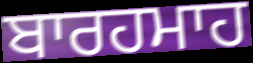
ਬਾਰਹਮਾਹ